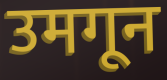
उमगून